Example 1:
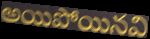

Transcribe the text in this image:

అయిపోయినవి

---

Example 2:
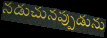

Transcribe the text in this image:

నడుచునప్పుడును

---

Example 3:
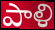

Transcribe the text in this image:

పాళి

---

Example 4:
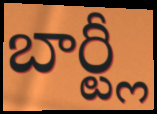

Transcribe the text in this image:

బార్ట్లీ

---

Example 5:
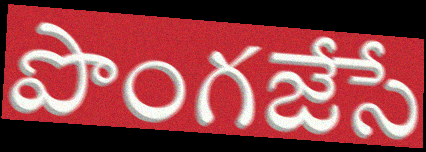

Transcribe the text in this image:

పొంగజేసే